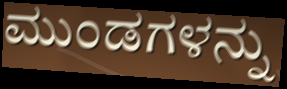
ಮುಂಡಗಳನ್ನು